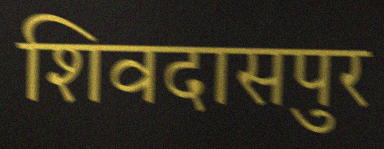
शिवदासपुर